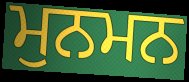
ਮੁਨਮਨ